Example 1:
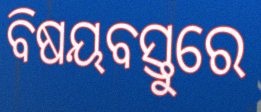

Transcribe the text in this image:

ବିଷୟବସ୍ତୁରେ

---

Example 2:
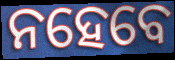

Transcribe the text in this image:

ନହେବେ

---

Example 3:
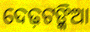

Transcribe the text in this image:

ଦେଢ଼ଟଙ୍କିଆ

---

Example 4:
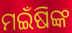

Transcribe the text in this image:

ମଇଁଷିଙ୍କ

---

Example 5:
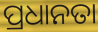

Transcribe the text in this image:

ପ୍ରଧାନତା